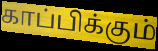
காப்பிக்கும்